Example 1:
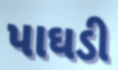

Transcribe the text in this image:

પાઘડી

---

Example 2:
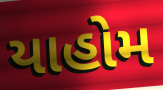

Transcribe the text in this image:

યાહોમ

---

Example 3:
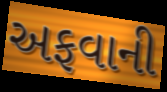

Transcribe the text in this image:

અફવાની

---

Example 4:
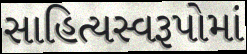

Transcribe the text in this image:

સાહિત્યસ્વરૂપોમાં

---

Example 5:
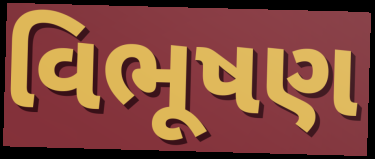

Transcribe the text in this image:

વિભૂષણ